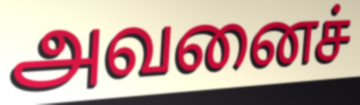
அவனைச்